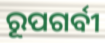
ରୂପଗର୍ବୀ